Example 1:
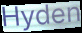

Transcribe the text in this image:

Hyden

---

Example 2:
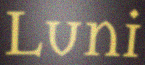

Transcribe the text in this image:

Luni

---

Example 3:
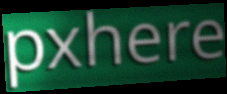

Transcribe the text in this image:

pxhere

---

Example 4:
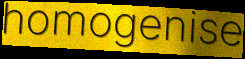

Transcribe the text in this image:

homogenise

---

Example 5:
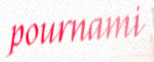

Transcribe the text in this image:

pournami